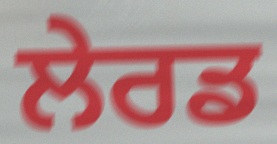
ਲੇਰਡ